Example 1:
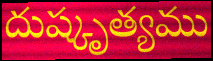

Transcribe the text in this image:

దుష్కృత్యము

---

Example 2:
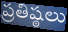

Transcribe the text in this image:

ప్రతిష్ఠలు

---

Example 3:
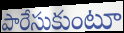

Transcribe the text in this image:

పారేసుకుంటూ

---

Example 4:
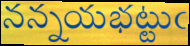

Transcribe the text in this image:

నన్నయభట్టుఁ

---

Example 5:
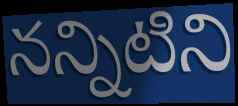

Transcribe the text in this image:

నన్నిటిని